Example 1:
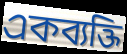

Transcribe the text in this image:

একব্যক্তি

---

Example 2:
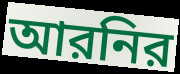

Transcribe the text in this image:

আরনির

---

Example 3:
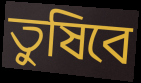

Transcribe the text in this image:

তুষিবে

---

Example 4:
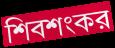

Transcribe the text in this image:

শিবশংকর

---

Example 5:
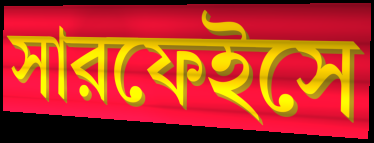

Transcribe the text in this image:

সারফেইসে